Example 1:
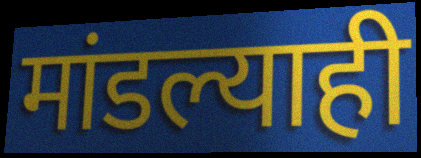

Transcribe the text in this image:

मांडल्याही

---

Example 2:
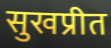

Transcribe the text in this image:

सुखप्रीत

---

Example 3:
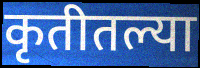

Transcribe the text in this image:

कृतीतल्या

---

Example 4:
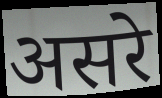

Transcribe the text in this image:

असरे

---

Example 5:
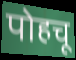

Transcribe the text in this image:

पोहचू